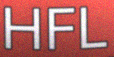
HFL